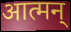
आत्मन्